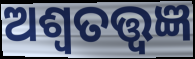
ଅଶ୍ୱତତ୍ତ୍ୱଜ୍ଞ